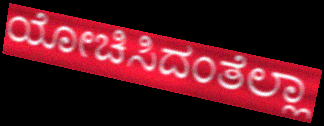
ಯೋಚಿಸಿದಂತೆಲ್ಲಾ